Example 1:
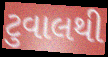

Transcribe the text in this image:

ટુવાલથી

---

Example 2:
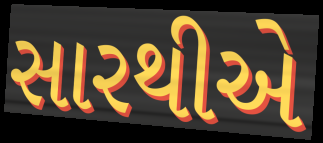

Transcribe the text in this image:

સારથીએ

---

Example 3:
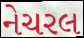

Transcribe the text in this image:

નેચરલ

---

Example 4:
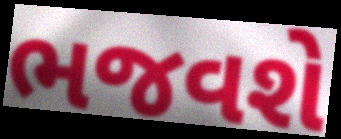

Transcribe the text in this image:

ભજવશે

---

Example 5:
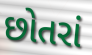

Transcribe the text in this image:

છોતરાં